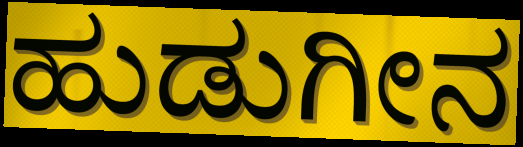
ಹುಡುಗೀನ